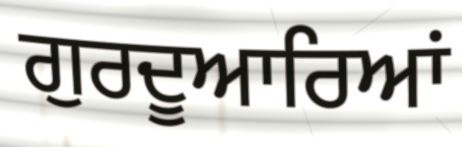
ਗੁਰਦੂਆਰਿਆਂ